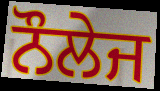
ਨੌਲੇਜ